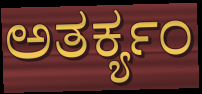
ಅತರ್ಕ್ಯಂ